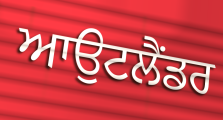
ਆਉਟਲੈਂਡਰ